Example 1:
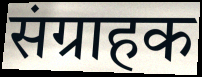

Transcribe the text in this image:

संग्राहक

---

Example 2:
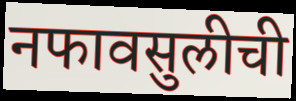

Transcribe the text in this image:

नफावसुलीची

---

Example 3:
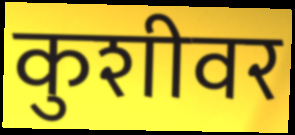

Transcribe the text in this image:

कुशीवर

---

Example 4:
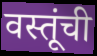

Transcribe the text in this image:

वस्तूंची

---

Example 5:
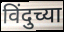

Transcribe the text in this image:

विंदुच्या